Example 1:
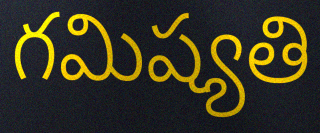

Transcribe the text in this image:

గమిష్యతి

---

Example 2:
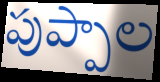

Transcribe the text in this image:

పుప్పాల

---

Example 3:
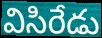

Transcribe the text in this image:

విసిరేడు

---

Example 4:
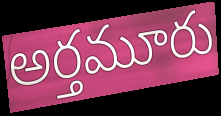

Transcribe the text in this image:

అర్తమూరు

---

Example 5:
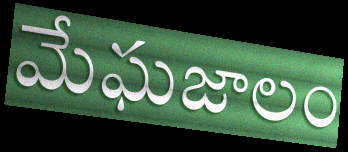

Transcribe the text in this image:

మేఘజాలం